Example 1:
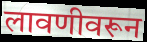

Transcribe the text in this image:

लावणीवरून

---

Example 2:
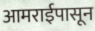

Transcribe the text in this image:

आमराईपासून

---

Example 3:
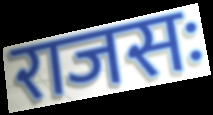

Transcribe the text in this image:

राजसः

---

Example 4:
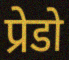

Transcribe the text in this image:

प्रेडो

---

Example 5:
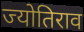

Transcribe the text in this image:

ज्योतिराव